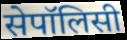
सेपॉलिसी